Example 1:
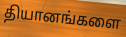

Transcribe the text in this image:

தியானங்களை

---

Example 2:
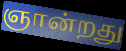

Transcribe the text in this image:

ஞான்றது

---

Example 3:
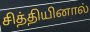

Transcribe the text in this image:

சித்தியினால்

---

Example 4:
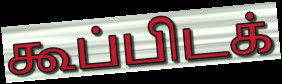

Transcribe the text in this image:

கூப்பிடக்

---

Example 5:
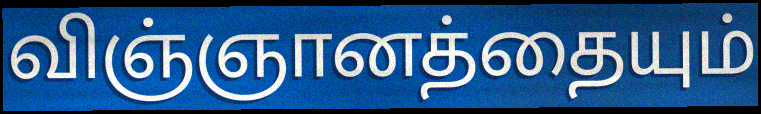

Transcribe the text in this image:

விஞ்ஞானத்தையும்